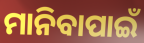
ମାନିବାପାଇଁ